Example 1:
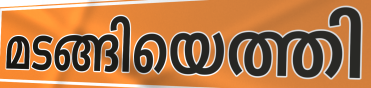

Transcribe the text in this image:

മടങ്ങിയെത്തി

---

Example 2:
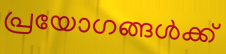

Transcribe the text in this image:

പ്രയോഗങ്ങൾക്ക്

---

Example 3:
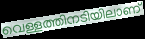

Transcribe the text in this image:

വെള്ളത്തിനടിയിലാണ്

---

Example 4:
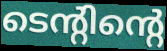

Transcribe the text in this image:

ടെന്റിന്റെ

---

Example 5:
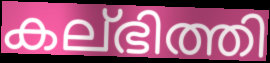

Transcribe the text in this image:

കല്ഭിത്തി